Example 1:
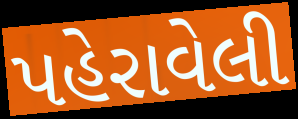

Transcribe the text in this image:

પહેરાવેલી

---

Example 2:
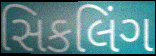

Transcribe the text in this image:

સિકલિંગ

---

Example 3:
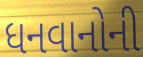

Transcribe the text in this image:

ધનવાનોની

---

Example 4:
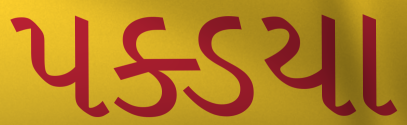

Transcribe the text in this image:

પક્ડયા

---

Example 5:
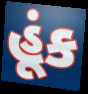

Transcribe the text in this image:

હૂંક